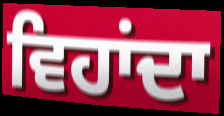
ਵਿਹਾਂਦਾ